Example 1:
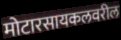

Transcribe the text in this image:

मोटारसायकलवरील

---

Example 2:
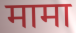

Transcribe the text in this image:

मामा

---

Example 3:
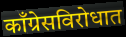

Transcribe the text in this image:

काँग्रेसविरोधात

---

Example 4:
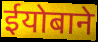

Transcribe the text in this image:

ईयोबाने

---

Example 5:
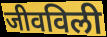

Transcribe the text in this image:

जीवविली